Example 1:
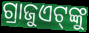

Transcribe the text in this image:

ଗ୍ରାଜୁଏଟ୍‌ଙ୍କୁ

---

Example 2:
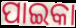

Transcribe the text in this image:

ପାଇକା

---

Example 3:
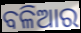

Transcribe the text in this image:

ବଳିଆର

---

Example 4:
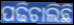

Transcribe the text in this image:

ପଢିଚାଲିଛି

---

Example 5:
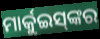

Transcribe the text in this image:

ମାର୍କୁଇସ୍‍ଙ୍କର